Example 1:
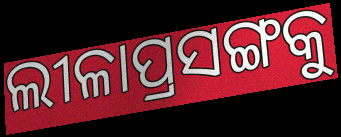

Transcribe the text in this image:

ଲୀଳାପ୍ରସଙ୍ଗକୁ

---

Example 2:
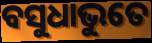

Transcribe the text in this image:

ବସୁଧାଭୁତେ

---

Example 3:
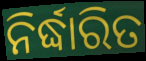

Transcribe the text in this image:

ନିର୍ଦ୍ଧାରିତ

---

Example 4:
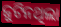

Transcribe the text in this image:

ଜୁଟିନଥିଲା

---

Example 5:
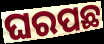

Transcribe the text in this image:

ଘରପଛ